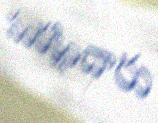
సంరక్షించారు